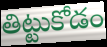
తిట్టుకోడం